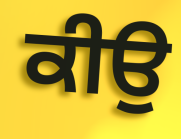
ਕੀਉ